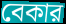
বেকার